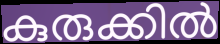
കുരുക്കിൽ